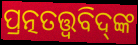
ପ୍ରତ୍ନତତ୍ତ୍ୱବିଦ୍‌ଙ୍କ